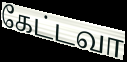
கேட்டவா